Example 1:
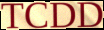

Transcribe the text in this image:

TCDD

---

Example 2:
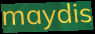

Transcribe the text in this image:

maydis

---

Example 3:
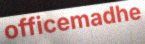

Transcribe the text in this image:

officemadhe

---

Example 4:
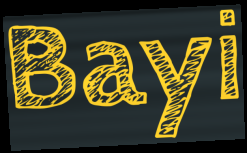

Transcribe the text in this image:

Bayi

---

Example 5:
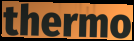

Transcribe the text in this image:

thermo